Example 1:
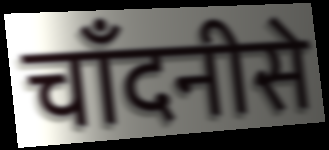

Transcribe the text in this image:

चाँदनीसे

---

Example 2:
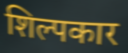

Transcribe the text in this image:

शिल्पकार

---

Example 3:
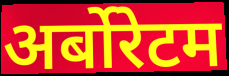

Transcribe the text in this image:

अर्बोरेटम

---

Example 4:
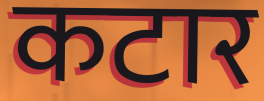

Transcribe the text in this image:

कटार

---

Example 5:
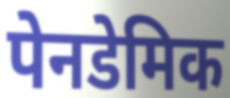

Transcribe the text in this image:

पेनडेमिक